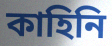
কাহিনি